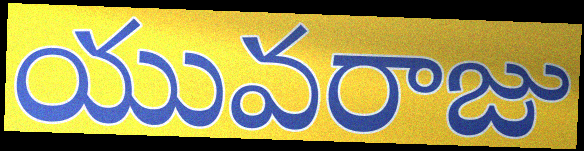
యువరాజు